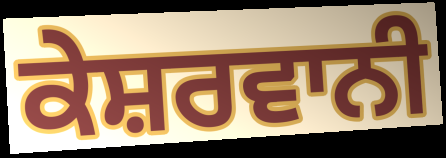
ਕੇਸ਼ਰਵਾਨੀ